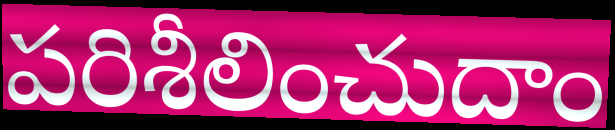
పరిశీలించుదాం